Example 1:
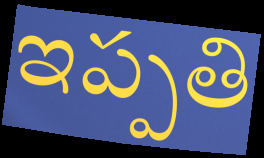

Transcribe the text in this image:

ఇప్పతి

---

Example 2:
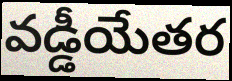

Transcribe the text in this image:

వడ్డీయేతర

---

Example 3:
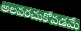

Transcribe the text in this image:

అలవరచుకోవడమే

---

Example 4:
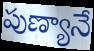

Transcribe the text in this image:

పుణ్యానే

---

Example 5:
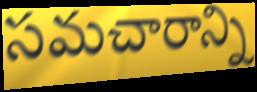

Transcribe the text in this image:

సమచారాన్ని